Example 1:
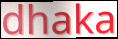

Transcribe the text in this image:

dhaka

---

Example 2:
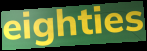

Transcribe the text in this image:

eighties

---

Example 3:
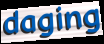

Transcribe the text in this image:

daging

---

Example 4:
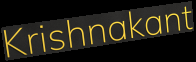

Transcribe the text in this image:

Krishnakant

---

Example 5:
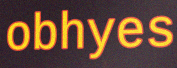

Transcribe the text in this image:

obhyes